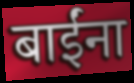
बाईंना